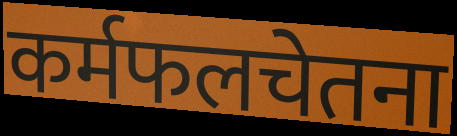
कर्मफलचेतना